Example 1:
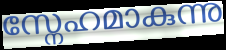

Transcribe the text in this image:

സ്നേഹമാകുന്നു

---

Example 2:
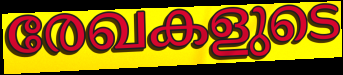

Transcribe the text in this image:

രേഖകളുടെ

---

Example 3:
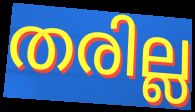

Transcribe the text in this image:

തരില്ല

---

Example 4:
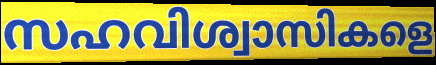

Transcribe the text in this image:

സഹവിശ്വാസികളെ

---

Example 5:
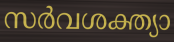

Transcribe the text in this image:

സർവശക്ത്യാ